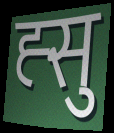
ह्सु